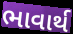
ભાવાર્થ